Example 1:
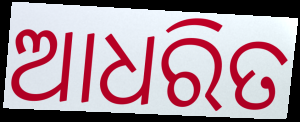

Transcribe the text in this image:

ଆଧରିତ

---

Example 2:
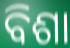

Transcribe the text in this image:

ବିଶା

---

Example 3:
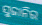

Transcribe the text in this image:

ସୁଜାନିର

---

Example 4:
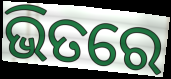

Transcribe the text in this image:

ଭିତରେ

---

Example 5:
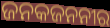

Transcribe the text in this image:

ଜନକଜନନୀର